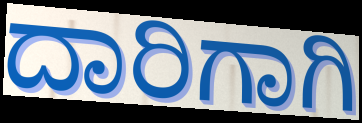
ದಾರಿಗಾಗಿ